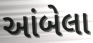
આંબેલા